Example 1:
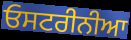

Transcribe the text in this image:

ਓਸਟਰੀਨੀਆ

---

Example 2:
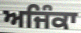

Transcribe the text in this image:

ਅਜਿੰਕਾ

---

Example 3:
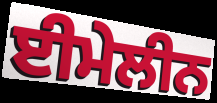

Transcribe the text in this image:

ਈਮੇਲੀਨ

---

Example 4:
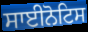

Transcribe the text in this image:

ਸਾਈਨੋਟਿਸ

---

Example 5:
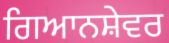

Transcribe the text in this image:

ਗਿਆਨਸ਼ੇਵਰ